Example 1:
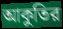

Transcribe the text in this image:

আকুতির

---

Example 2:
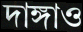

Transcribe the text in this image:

দাঙ্গাও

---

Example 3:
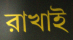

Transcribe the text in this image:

রাখাই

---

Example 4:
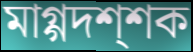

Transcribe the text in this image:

মাগ্গদশ্শক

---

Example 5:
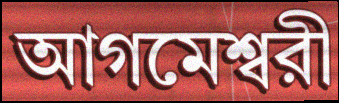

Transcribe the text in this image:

আগমেশ্বরী